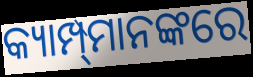
କ୍ୟାମ୍ପ୍‍ମାନଙ୍କରେ